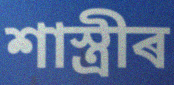
শাস্ত্ৰীৰ